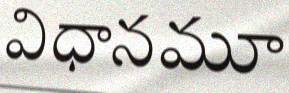
విధానమూ